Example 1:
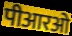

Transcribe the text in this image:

पीआरओ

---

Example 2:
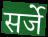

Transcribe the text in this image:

सर्जे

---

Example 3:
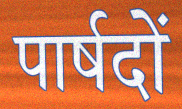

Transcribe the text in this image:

पार्षदों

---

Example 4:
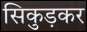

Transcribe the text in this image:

सिकुड़कर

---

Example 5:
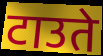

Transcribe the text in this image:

टाउते